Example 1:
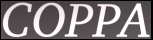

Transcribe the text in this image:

COPPA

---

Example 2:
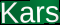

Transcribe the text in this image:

Kars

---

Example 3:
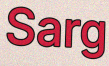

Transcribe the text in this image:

Sarg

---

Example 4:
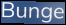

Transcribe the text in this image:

Bunge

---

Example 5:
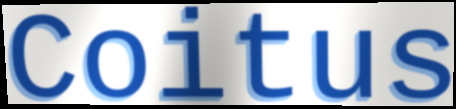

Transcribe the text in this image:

Coitus